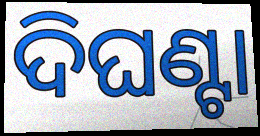
ଦିଘଣ୍ଟା